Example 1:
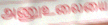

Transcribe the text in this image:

அணுஉலையை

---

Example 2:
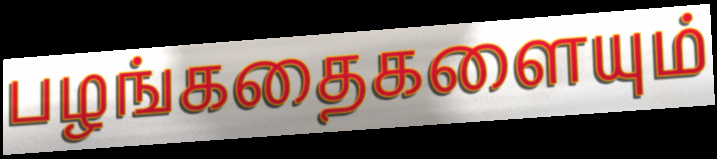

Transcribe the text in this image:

பழங்கதைகளையும்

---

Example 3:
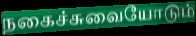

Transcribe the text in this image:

நகைச்சுவையோடும்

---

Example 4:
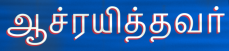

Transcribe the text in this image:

ஆச்ரயித்தவர்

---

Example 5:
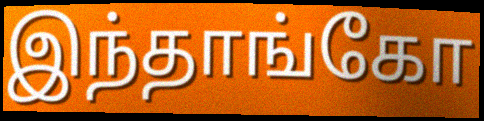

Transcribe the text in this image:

இந்தாங்கோ